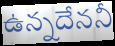
ఉన్నదేననీ